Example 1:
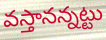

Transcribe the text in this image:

వస్తానన్నట్టు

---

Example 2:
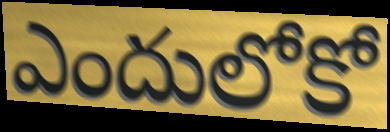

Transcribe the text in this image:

ఎందులోకో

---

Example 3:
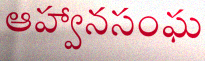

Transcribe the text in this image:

ఆహ్వానసంఘ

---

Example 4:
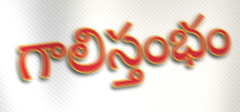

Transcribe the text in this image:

గాలిస్తంభం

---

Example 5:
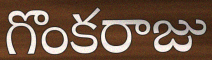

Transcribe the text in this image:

గొంకరాజు